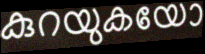
കുറയുകയോ